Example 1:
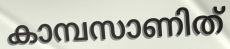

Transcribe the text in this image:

കാമ്പസാണിത്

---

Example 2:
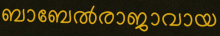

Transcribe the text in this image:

ബാബേൽരാജാവായ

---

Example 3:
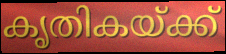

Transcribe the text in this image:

കൃതികയ്ക്ക്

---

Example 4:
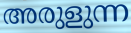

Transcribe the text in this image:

അരുളുന്ന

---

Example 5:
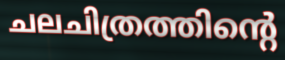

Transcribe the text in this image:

ചലചിത്രത്തിന്റെ